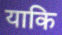
याकि